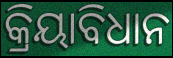
କ୍ରିୟାବିଧାନ